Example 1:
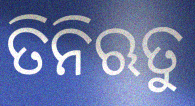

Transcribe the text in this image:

ତିନିଋତୁ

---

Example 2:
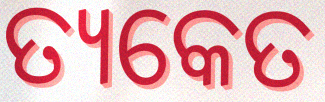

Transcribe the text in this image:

ତ୍ୟକେତ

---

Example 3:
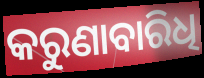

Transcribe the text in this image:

କରୁଣାବାରିଧି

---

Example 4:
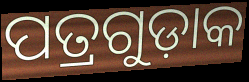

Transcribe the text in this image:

ପତ୍ରଗୁଡ଼ାକ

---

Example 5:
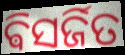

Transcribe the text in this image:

ଵିସର୍ଜିତ